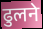
ढुलने